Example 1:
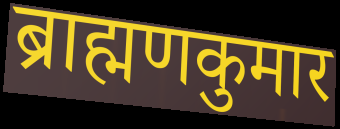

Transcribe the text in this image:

ब्राह्मणकुमार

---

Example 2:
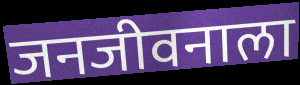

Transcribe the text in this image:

जनजीवनाला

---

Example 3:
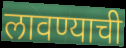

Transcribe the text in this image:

लावण्याची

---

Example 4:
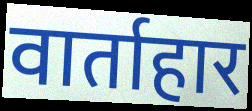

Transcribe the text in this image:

वार्ताहार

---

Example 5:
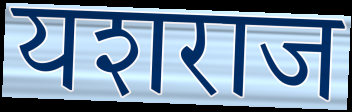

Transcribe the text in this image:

यशराज